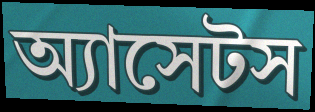
অ্যাসেটস